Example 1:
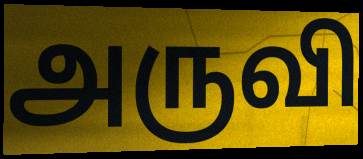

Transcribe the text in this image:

அருவி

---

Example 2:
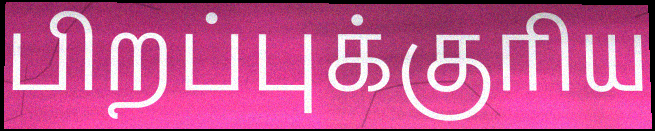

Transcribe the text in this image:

பிறப்புக்குரிய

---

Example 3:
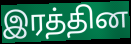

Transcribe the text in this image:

இரத்தின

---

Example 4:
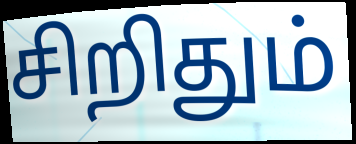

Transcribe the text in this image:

சிறிதும்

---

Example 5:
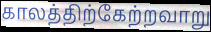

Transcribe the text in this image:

காலத்திற்கேற்றவாறு